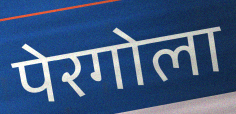
पेरगोला